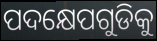
ପଦକ୍ଷେପଗୁଡିକୁ